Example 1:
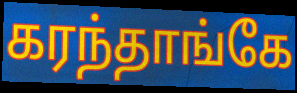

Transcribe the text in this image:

கரந்தாங்கே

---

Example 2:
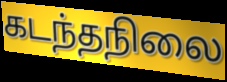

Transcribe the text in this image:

கடந்தநிலை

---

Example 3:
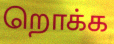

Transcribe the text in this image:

றொக்க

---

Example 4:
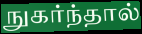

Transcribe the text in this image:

நுகர்ந்தால்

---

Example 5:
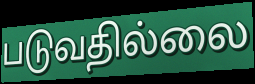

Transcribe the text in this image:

படுவதில்லை